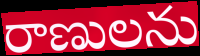
రాణులను